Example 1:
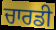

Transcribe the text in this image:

ਚਾਰਡੀ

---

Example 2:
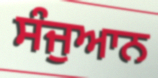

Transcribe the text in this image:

ਸੰਜੁਆਨ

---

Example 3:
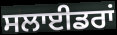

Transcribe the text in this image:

ਸਲਾਈਡਰਾਂ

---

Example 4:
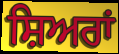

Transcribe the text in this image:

ਸ਼ਿਅਰਾਂ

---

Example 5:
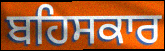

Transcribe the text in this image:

ਬਹਿਸਕਾਰ